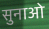
सुनाओ